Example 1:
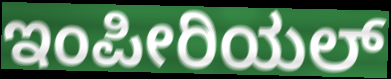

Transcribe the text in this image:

ಇಂಪೀರಿಯಲ್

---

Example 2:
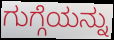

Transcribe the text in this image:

ಗುಗ್ಗೆಯನ್ನು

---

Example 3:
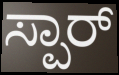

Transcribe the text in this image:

ಸ್ಪಾರ್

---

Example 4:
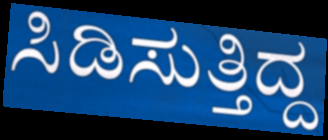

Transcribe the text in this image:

ಸಿಡಿಸುತ್ತಿದ್ದ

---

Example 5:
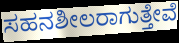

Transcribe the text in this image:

ಸಹನಶೀಲರಾಗುತ್ತೇವೆ